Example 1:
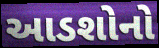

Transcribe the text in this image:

આડશોનો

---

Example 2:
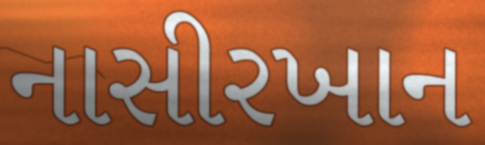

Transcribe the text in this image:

નાસીરખાન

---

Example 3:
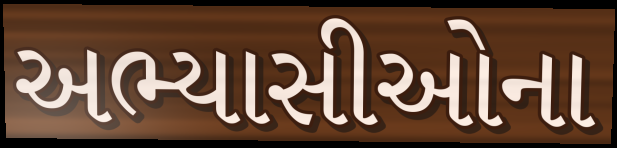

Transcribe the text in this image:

અભ્યાસીઓના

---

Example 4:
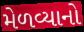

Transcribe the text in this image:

મેળવ્યાનો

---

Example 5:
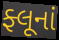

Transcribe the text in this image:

ફ્લૂનાં